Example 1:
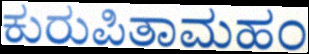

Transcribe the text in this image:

ಕುರುಪಿತಾಮಹಂ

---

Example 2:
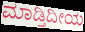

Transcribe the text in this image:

ಮಾಡ್ತಿದೀಯ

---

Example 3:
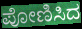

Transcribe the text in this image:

ಪೋಣಿಸಿದ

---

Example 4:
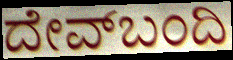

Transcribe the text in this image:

ದೇವ್‌ಬಂದಿ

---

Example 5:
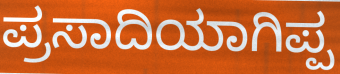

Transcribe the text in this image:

ಪ್ರಸಾದಿಯಾಗಿಪ್ಪ